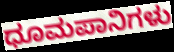
ಧೂಮಪಾನಿಗಳು